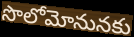
సొలోమోనునకు